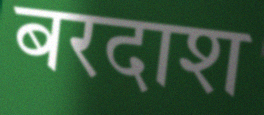
बरदाश